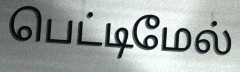
பெட்டிமேல்